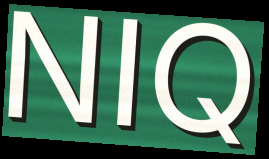
NIQ